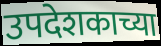
उपदेशकाच्या